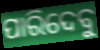
ପାରିଦେବୁ